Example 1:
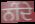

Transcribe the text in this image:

ਨੀਂਦੇ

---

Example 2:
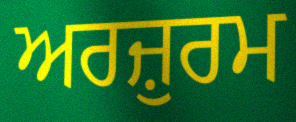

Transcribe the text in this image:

ਅਰਜ਼ੁਰਮ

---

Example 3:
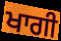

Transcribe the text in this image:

ਖਾਗੀ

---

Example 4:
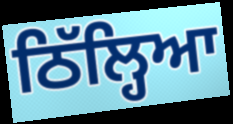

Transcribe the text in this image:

ਠਿੱਲ੍ਹਿਆ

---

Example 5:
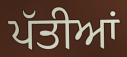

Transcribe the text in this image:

ਪੱਤੀਆਂ